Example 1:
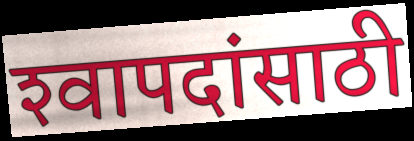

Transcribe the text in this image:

श्वापदांसाठी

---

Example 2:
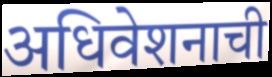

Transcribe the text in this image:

अधिवेशनाची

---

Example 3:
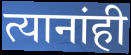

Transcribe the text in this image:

त्यानांही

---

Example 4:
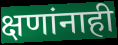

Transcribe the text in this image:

क्षणांनाही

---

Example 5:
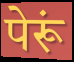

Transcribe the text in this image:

पेरूं